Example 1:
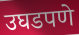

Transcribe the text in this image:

उघडपणे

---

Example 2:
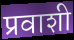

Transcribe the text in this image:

प्रवाशी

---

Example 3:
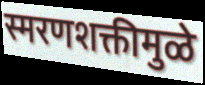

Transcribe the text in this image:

स्मरणशक्तीमुळे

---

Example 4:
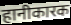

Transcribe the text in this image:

हानीकारक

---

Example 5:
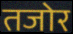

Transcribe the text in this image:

तजोर